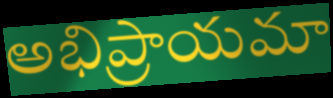
అభిప్రాయమా